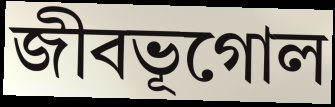
জীবভূগোল